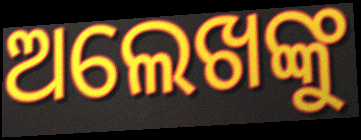
ଅଲେଖଙ୍କୁ